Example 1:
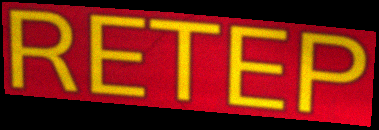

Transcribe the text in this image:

RETEP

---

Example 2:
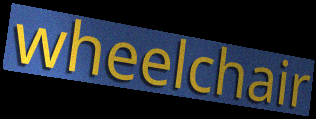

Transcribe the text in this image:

wheelchair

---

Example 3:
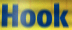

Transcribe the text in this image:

Hook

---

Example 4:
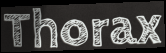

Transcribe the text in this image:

Thorax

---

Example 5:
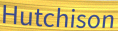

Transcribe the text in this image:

Hutchison